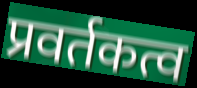
प्रवर्तकत्व